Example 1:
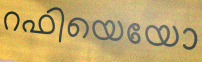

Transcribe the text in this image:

റഫിയെയോ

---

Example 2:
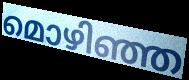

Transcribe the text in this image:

മൊഴിഞ്ഞ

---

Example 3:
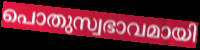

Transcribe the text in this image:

പൊതുസ്വഭാവമായി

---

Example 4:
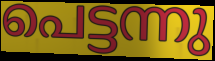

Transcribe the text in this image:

പെട്ടന്നു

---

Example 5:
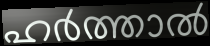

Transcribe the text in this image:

ഹർത്താൽ